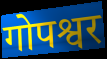
गोपश्वर